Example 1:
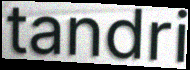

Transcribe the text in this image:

tandri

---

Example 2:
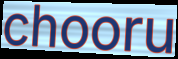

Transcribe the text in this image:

chooru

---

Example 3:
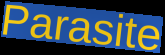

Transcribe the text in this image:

Parasite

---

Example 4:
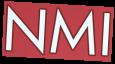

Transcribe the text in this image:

NMI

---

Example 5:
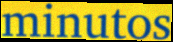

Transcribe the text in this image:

minutos